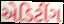
એડિટીંગ